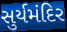
સુર્યમંદિર